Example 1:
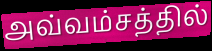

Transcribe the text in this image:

அவ்வம்சத்தில்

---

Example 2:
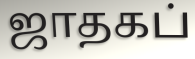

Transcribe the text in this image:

ஜாதகப்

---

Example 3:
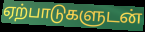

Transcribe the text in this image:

ஏற்பாடுகளுடன்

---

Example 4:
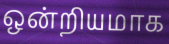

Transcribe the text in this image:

ஒன்றியமாக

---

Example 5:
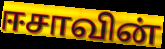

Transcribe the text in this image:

ஈசாவின்